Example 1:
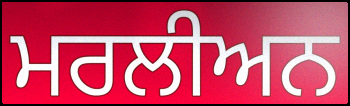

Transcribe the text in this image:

ਮਰਲੀਅਨ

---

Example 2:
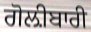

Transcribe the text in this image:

ਗੋਲ਼ੀਬਾਰੀ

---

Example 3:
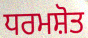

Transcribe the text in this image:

ਧਰਮਸ਼ੋਤ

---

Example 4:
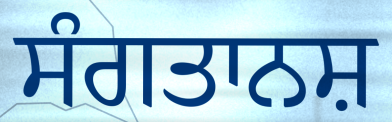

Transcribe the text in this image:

ਸੰਗਤਾਨਸ਼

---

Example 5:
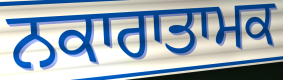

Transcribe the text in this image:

ਨਕਾਰਾਤਾਮਕ